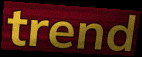
trend